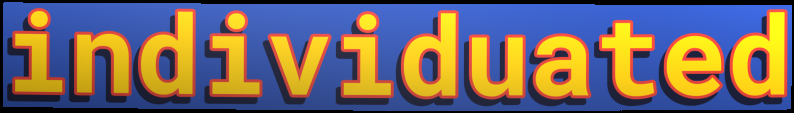
individuated